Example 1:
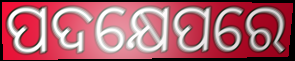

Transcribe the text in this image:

ପଦକ୍ଷେପରେ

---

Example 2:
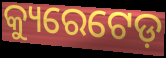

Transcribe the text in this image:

କ୍ୟୁରେଟେଡ଼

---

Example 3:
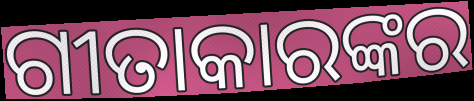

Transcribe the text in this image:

ଗୀତାକାରଙ୍କର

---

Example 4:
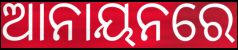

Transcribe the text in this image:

ଆନାୟନରେ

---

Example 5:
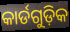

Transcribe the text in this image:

କାର୍ଡଗୁଡ଼ିକ